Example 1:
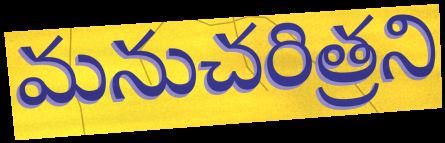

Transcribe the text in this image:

మనుచరిత్రని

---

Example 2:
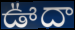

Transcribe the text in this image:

ఊదా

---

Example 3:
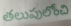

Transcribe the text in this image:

తలుపులోంచి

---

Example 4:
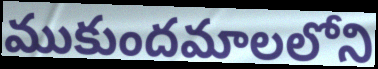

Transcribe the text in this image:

ముకుందమాలలోని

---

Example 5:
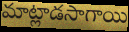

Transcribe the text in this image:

మాట్లాడసాగాయి